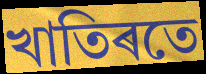
খাতিৰতে